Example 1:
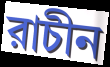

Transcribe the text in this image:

রাচীন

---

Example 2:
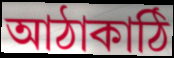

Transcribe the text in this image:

আঠাকাঠি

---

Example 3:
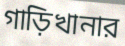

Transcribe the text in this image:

গাড়িখানার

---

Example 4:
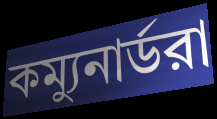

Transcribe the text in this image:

কম্যুনার্ডরা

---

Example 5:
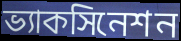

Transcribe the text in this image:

ভ্যাকসিনেশন